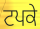
ਟਪਕੇ